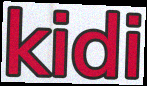
kidi